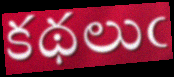
కథలుఁ